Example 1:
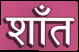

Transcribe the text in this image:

शाँत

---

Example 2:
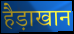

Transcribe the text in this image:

हैड़ाखान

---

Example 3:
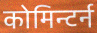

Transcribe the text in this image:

कोमिन्टर्न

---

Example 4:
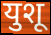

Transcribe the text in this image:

युशू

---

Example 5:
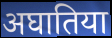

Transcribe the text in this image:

अघातिया